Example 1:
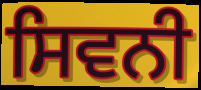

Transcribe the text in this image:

ਸਿਵਨੀ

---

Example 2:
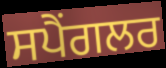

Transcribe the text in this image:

ਸਪੈਂਗਲਰ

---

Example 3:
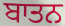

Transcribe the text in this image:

ਬਾਤਨ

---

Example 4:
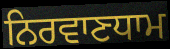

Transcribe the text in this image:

ਨਿਰਵਾਣਧਾਮ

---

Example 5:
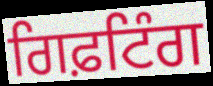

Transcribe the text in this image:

ਗਿਫ਼ਟਿੰਗ